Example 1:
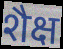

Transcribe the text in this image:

शैक्ष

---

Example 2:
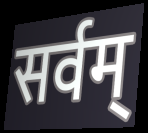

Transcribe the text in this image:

सर्वम्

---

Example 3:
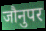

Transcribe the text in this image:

जौनुपर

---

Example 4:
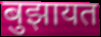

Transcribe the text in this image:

बुझायत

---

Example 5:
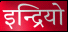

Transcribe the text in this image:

इन्द्रियो